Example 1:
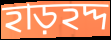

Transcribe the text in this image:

হাড়হদ্দ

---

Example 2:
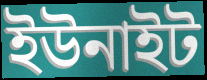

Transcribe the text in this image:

ইউনাইট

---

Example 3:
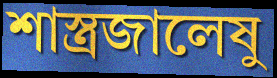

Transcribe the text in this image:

শাস্ত্রজালেষু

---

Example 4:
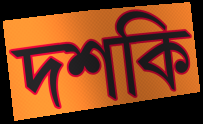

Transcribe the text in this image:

দশকি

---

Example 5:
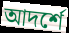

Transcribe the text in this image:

আদর্শে